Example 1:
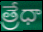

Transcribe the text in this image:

త్రేధా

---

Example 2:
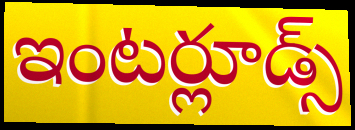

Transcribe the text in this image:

ఇంటర్లూడ్స్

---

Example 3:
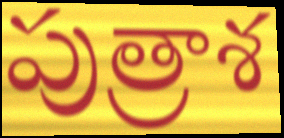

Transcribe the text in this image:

పుత్రాశ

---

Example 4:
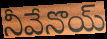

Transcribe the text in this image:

నీవేనొయ్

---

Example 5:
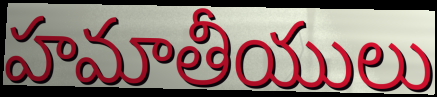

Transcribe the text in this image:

హమాతీయులు